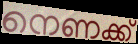
നെണക്ക്